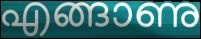
എങ്ങാണു